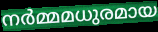
നർമ്മമധുരമായ